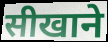
सीखाने